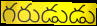
గరుడుడు